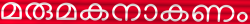
മരുമകനാകണം